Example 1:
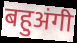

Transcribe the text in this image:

बहुअंगी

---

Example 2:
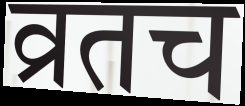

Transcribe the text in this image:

व्रतच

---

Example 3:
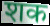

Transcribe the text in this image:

शक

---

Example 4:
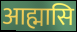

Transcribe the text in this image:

आह्मासि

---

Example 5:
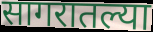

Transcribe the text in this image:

सागरातल्या